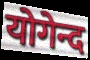
योगेन्द